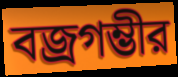
বজ্রগম্ভীর